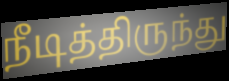
நீடித்திருந்து